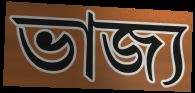
ভাজ্য